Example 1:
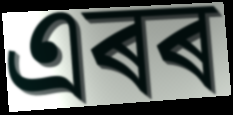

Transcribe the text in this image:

এৰৰ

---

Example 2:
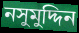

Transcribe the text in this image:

নসুমুদ্দিন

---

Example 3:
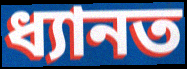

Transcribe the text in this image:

ধ্যানত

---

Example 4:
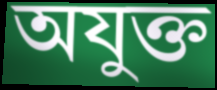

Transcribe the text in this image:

অযুক্ত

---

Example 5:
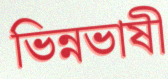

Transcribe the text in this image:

ভিন্নভাষী